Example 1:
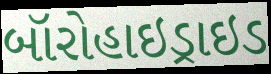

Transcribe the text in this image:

બૉરોહાઇડ્રાઇડ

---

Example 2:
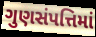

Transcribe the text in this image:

ગુણસંપત્તિમાં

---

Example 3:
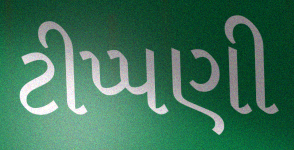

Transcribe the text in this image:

ટીપ્પણી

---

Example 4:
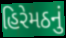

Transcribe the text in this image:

હિરેમઠનું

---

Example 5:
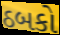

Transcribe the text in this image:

ઠબકો